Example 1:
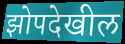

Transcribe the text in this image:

झोपदेखील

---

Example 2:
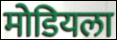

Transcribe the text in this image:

मोडियला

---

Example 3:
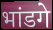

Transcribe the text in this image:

भांडगे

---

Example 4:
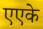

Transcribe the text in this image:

एएके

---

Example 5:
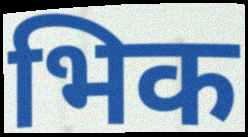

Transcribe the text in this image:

भिक